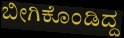
ಬೀಗಿಕೊಂಡಿದ್ದ